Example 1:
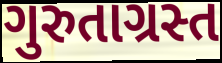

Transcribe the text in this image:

ગુરુતાગ્રસ્ત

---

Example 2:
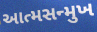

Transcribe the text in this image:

આત્મસન્મુખ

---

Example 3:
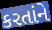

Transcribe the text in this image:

કરતાંને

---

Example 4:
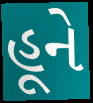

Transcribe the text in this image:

હૂને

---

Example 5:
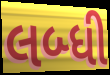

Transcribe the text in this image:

લબ્ધી